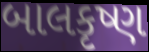
બાલકૃષ્ણ